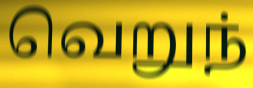
வெறுந்